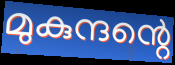
മുകുന്ദന്റെ